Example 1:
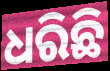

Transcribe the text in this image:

ଧରିଛି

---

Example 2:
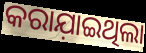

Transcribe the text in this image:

କରାଯ଼ାଇଥିଲା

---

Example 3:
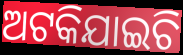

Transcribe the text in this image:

ଅଟକିଯାଇଚି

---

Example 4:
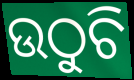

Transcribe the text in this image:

ଉଠୁଚି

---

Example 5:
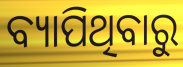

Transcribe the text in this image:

ବ୍ୟାପିଥିବାରୁ